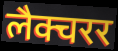
लैक्चरर